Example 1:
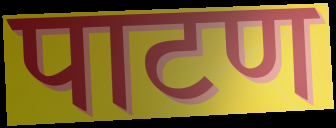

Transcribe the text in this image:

पाटण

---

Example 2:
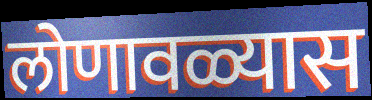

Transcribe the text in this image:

लोणावळ्यास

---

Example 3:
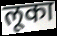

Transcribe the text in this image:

लूका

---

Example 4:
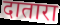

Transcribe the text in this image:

दातारा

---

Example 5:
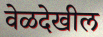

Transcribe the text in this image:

वेळदेखील